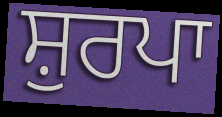
ਸ਼ੁਰਪਾ